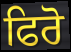
ਫਿਰੋ